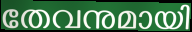
തേവനുമായി